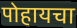
पोहायचा